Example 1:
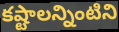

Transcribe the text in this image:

కష్టాలన్నింటిని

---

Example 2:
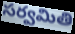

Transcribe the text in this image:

సర్వమితి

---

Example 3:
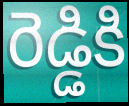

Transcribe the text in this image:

రెడ్డికి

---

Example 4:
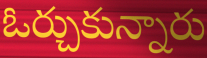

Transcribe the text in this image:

ఓర్చుకున్నారు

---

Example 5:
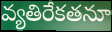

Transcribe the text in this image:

వ్యతిరేకతనూ